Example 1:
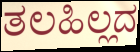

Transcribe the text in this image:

ತಲಹಿಲ್ಲದ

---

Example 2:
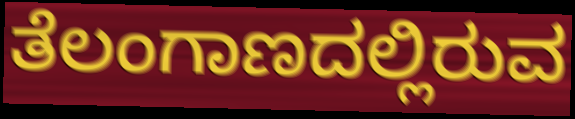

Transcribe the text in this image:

ತೆಲಂಗಾಣದಲ್ಲಿರುವ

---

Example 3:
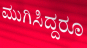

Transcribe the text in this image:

ಮುಗಿಸಿದ್ದರೂ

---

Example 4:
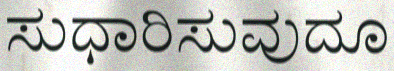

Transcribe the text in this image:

ಸುಧಾರಿಸುವುದೂ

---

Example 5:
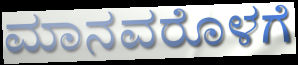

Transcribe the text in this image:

ಮಾನವರೊಳಗೆ